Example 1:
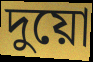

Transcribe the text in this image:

দুয়ো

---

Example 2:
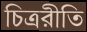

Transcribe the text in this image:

চিত্ররীতি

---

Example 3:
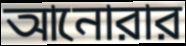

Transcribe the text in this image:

আনোরার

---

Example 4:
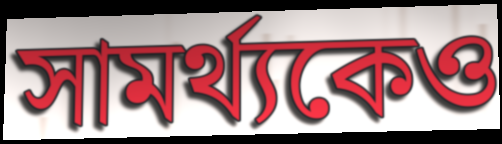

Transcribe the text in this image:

সামর্থ্যকেও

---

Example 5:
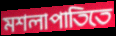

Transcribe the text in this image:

মশলাপাতিতে